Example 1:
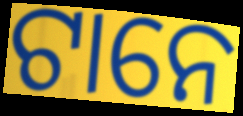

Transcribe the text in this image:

ଟାନେ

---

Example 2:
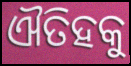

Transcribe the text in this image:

ଐତିହକୁ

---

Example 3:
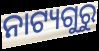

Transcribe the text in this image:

ନାଟ୍ୟଗୁରୁ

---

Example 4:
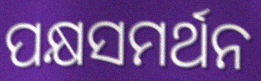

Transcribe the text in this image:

ପକ୍ଷସମର୍ଥନ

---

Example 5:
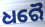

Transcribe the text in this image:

ଧରୈ